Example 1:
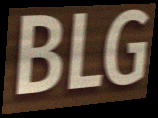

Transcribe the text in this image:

BLG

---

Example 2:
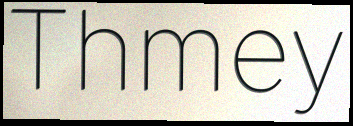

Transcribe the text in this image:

Thmey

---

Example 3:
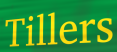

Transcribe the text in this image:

Tillers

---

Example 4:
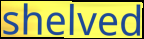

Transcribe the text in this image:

shelved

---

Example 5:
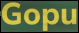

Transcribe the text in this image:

Gopu